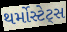
થર્મોસ્ટેટ્સ